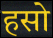
हसो